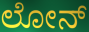
ಲೋನ್